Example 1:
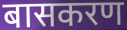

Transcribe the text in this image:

बासकरण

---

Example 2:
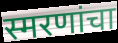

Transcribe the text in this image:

स्मरणांचा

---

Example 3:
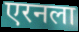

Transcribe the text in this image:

एरनला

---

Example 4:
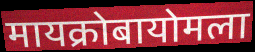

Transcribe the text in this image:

मायक्रोबायोमला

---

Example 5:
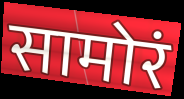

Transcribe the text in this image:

सामोरं